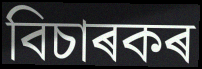
বিচাৰকৰ